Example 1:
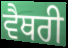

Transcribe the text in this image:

ਵੈਥਰੀ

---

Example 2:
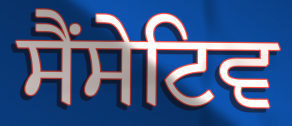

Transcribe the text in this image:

ਸੈਂਸੇਟਿਵ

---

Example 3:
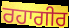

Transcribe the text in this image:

ਰਹਾਗੀਰ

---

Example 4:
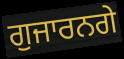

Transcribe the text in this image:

ਗੁਜਾਰਨਗੇ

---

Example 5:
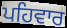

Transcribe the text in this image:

ਪਹਿਵਾਰ